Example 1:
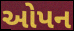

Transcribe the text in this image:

ઓપન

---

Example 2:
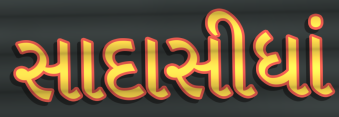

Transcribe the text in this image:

સાદાસીધાં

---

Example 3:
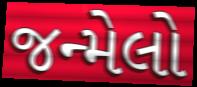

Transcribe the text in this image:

જન્મેલો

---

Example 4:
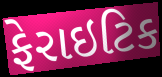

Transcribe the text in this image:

ફેરાઇટિક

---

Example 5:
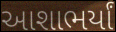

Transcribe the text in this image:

આશાભર્યાં